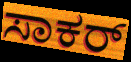
ಸಾಕರ್